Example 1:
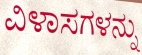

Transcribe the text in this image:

ವಿಳಾಸಗಳನ್ನು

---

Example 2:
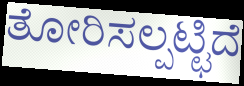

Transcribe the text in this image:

ತೋರಿಸಲ್ಪಟ್ಟಿದೆ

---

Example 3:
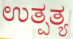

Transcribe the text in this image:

ಉತ್ಪತ್ಯ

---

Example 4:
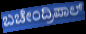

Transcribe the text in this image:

ಬಚೇಂದ್ರಿಪಾಲ್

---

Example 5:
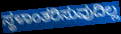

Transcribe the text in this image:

ಸ್ಥಳಾಂತರಿಸುವುದಿಲ್ಲ